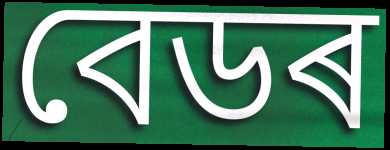
বেডৰ